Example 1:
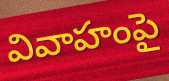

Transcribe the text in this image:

వివాహంపై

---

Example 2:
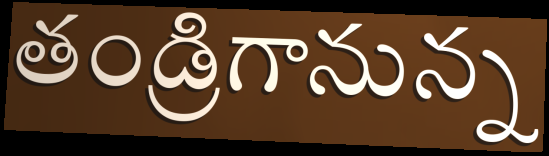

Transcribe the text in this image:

తండ్రిగానున్న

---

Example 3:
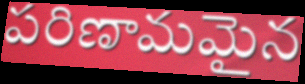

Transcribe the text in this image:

పరిణామమైన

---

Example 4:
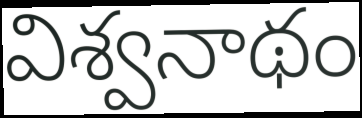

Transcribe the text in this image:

విశ్వనాథం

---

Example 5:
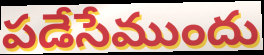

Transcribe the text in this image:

పడేసేముందు